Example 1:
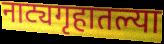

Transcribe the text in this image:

नाट्यगृहातल्या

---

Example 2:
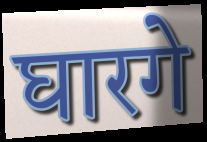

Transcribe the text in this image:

घारगे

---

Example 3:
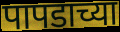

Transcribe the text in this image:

पापडाच्या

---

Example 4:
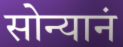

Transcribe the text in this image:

सोन्यानं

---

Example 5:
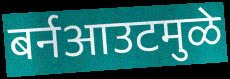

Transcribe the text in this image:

बर्नआउटमुळे